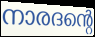
നാരദന്റെ